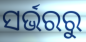
ସର୍ଭରରୁ